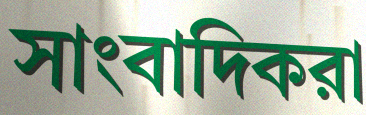
সাংবাদিকরা